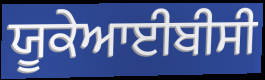
ਯੂਕੇਆਈਬੀਸੀ